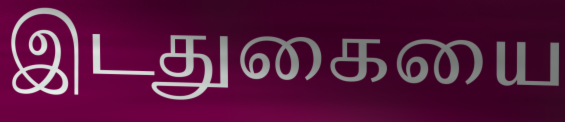
இடதுகையை